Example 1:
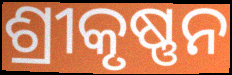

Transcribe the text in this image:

ଶ୍ରୀକୃଷ୍ଣନ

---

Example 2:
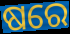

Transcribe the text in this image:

ଷରେ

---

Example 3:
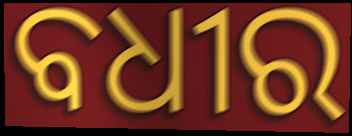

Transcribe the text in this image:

ବଧୀର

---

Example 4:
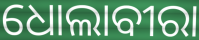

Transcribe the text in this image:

ଧୋଲାବୀରା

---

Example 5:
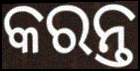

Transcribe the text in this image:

କରନ୍ତ